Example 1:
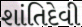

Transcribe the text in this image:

શાંતિદેવી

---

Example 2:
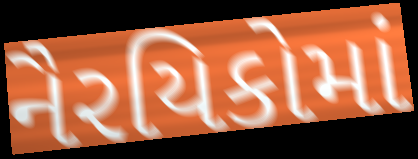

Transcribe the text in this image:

નૈરયિકોમાં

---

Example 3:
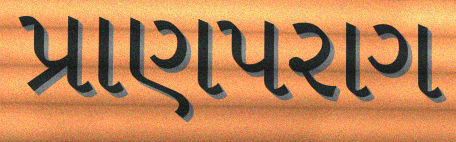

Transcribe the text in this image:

પ્રાણપરાગ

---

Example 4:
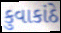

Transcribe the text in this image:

કુવાકાંઠે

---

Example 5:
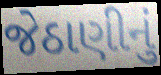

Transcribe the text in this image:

જેઠાણીનું